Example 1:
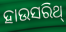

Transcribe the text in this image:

ହାଉସରିଥ୍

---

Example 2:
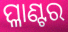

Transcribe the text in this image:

ପ୍ଳାଣ୍ଟର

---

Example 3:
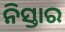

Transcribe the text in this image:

ନିସ୍ତାର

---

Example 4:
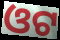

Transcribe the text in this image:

ଓଟ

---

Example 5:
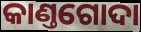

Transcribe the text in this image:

କାଣ୍ତଗୋଦା